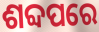
ଶବ୍ଦପରେ